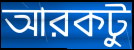
আরকটু